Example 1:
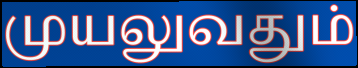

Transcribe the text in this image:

முயலுவதும்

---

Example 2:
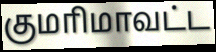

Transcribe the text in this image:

குமரிமாவட்ட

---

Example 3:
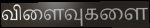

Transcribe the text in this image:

விளைவுகளை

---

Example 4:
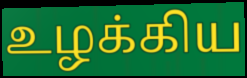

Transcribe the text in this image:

உழக்கிய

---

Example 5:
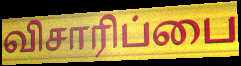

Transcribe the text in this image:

விசாரிப்பை